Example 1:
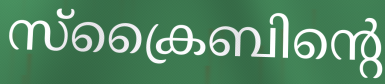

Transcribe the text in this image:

സ്ക്രൈബിന്റെ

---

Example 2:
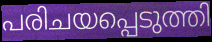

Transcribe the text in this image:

പരിചയപ്പെടുത്തി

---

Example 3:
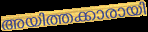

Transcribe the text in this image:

അയിത്തക്കാരായി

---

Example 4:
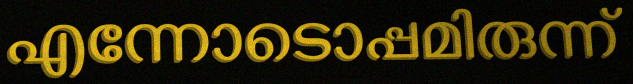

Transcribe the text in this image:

എന്നോടൊപ്പമിരുന്ന്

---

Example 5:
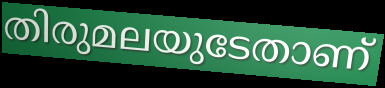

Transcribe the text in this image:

തിരുമലയുടേതാണ്